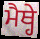
ਮੈਥ੍ਹੇ